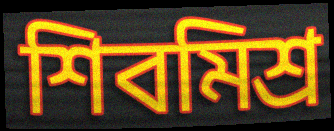
শিবমিশ্র